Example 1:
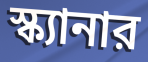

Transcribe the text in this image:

স্ক্যানার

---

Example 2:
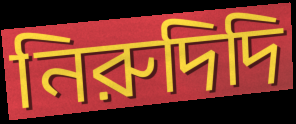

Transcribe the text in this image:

নিরুদিদি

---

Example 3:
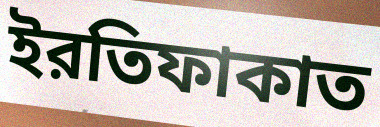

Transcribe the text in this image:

ইরতিফাকাত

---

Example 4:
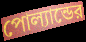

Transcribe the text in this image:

পোল্যান্ডের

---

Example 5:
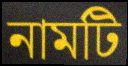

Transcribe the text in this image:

নামটি